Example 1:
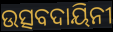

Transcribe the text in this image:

ଉତ୍ସବଦାୟିନୀ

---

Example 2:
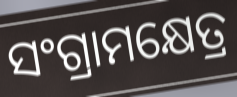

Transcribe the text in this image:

ସଂଗ୍ରାମକ୍ଷେତ୍ର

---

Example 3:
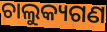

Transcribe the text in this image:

ଚାଲୁକ୍ୟଗଣ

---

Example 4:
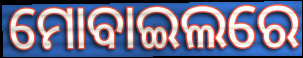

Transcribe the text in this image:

ମୋବାଇଲରେ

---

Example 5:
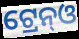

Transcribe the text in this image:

ଟ୍ରେନ୍ଓ